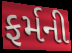
ફર્મની